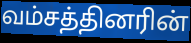
வம்சத்தினரின்